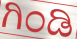
ಗಿಂಡಿ